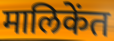
मालिकेंत